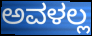
ಅವಳಲ್ಲ